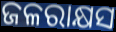
ଜଳରାକ୍ଷସ